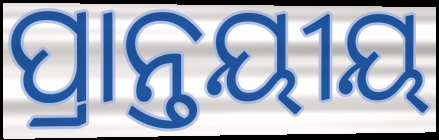
ପ୍ରାନ୍ତୟୀୟ